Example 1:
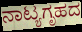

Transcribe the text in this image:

ನಾಟ್ಯಗೃಹದ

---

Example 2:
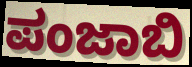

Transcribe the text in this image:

ಪಂಜಾಬಿ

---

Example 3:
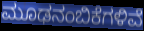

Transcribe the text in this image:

ಮೂಢನಂಬಿಕೆಗಳಿವೆ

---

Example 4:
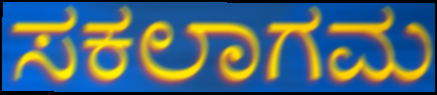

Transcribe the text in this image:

ಸಕಲಾಗಮ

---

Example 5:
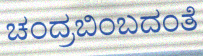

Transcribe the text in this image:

ಚಂದ್ರಬಿಂಬದಂತೆ